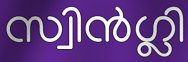
സ്വിൻഗ്ലി